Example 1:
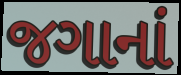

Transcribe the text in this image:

જગાનાં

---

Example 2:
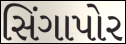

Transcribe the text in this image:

સિંગાપોર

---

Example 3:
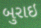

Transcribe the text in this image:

બુરાઇ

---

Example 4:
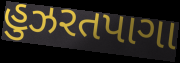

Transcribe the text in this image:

હુઝરતપાગા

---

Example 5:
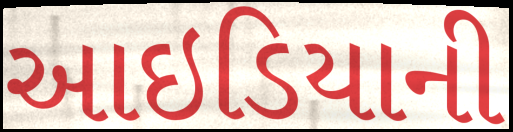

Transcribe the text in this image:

આઇડિયાની